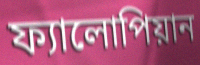
ফ্যালোপিয়ান